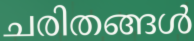
ചരിതങ്ങൾ